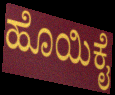
ಹೊಯಿಕೈ